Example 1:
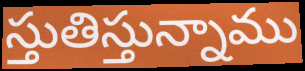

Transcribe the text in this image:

స్తుతిస్తున్నాము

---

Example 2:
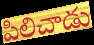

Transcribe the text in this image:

పిలిచాడు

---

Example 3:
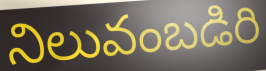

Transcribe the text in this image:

నిలువంబడిరి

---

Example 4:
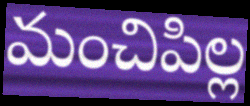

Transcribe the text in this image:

మంచిపిల్ల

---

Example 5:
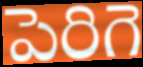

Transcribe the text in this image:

పెరిగె